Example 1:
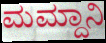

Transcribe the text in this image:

ಮಮ್ದಾನಿ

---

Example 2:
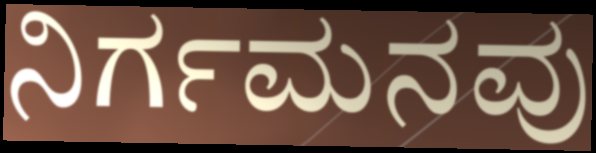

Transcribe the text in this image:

ನಿರ್ಗಮನವು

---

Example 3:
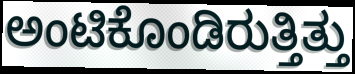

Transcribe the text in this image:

ಅಂಟಿಕೊಂಡಿರುತ್ತಿತ್ತು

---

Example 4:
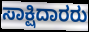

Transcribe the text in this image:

ಸಾಕ್ಷಿದಾರರು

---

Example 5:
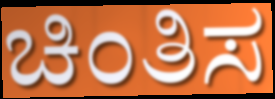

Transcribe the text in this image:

ಚಿಂತಿಸ